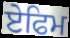
ਏਫਿਮ